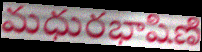
మధురభాషిణి